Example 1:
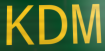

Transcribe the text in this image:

KDM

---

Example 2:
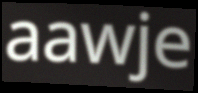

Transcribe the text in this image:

aawje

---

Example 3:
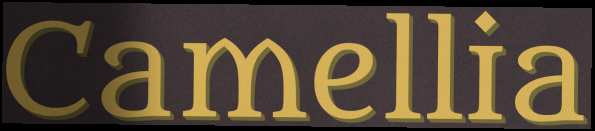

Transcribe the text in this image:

Camellia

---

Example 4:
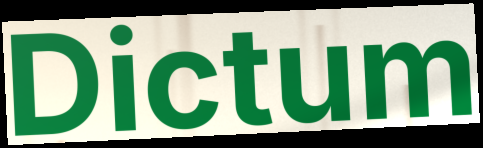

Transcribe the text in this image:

Dictum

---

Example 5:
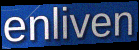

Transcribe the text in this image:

enliven